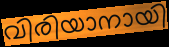
വിരിയാനായി